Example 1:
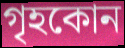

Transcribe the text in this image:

গৃহকোন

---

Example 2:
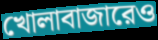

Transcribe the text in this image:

খোলাবাজারেও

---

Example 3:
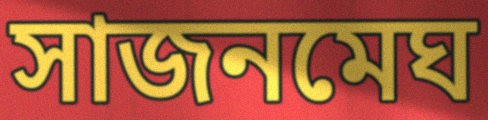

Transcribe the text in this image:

সাজনমেঘ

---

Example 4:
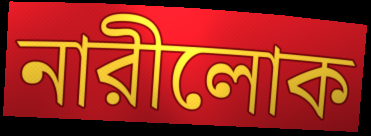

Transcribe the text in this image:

নারীলোক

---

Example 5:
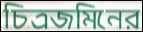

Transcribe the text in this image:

চিত্রজমিনের